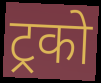
ट्रको